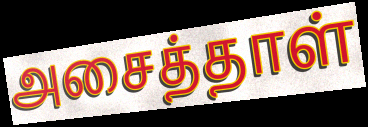
அசைத்தாள்